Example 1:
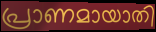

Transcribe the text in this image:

പ്രാണമായാതി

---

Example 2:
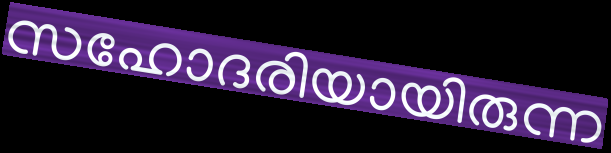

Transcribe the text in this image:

സഹോദരിയായിരുന്ന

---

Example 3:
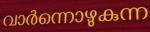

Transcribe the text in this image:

വാർന്നൊഴുകുന്ന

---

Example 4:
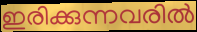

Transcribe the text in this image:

ഇരിക്കുന്നവരിൽ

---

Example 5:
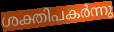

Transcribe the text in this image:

ശക്തിപകർന്നു